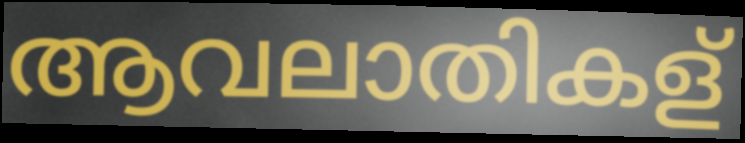
ആവലാതികള്